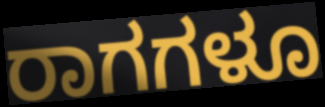
ರಾಗಗಳೂ